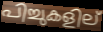
പിച്ചുകളില്